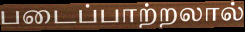
படைப்பாற்றலால்